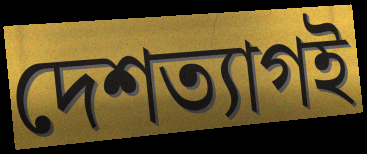
দেশত্যাগই